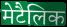
मेटैलिक